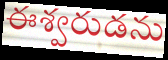
ఈశ్వరుడను